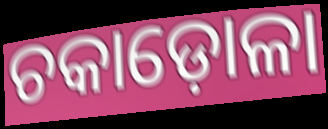
ଚକାଡ଼ୋଳା